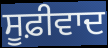
ਸੂਫ਼ੀਵਾਦ